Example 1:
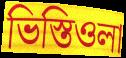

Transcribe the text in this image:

ভিস্তিওলা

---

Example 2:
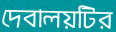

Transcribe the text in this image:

দেবালয়টির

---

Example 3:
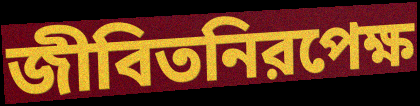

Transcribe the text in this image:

জীবিতনিরপেক্ষ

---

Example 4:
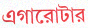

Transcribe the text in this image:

এগারোটার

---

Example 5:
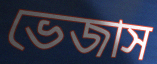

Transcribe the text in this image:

ভেজাস